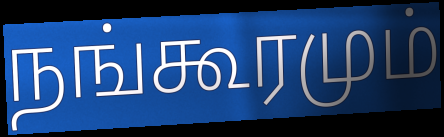
நங்கூரமும்